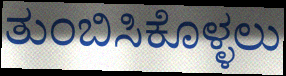
ತುಂಬಿಸಿಕೊಳ್ಳಲು